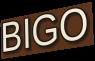
BIGO